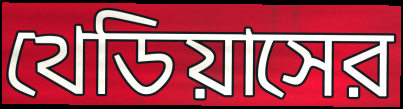
থেডিয়াসের